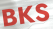
BKS